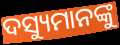
ଦସ୍ୟୁମାନଙ୍କୁ